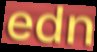
edn